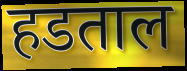
हडताल